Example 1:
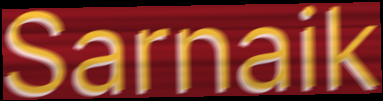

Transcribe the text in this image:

Sarnaik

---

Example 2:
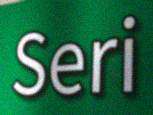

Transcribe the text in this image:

Seri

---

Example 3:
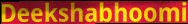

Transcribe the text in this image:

Deekshabhoomi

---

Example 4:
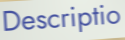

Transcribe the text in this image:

Descriptio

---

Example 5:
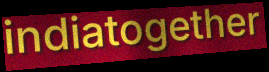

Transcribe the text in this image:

indiatogether